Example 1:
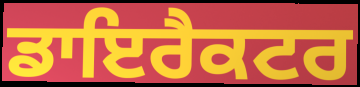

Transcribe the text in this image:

ਡਾਇਰੈਕਟਰ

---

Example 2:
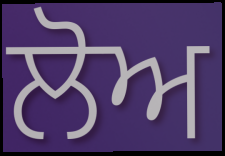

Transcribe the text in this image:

ਲੋਅ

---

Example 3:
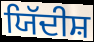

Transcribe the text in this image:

ਯਿੱਦੀਸ਼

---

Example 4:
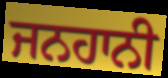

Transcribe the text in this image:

ਜਨਹਾਨੀ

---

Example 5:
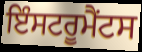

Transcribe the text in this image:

ਇੰਸਟਰੂਮੈਂਟਸ